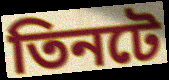
তিনটে